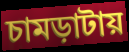
চামড়াটায়